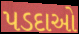
પડદાઓ